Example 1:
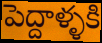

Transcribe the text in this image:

పెద్దాళ్ళకి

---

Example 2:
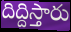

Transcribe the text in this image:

దిద్దిస్తారు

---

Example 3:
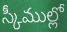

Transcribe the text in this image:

స్కీముల్లో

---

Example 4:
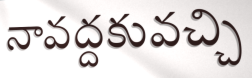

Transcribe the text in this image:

నావద్దకువచ్చి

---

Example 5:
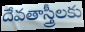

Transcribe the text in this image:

దేవతాస్త్రీలకు